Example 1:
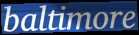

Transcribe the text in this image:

baltimore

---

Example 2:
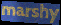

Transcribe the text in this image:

marshy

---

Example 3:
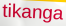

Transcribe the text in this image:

tikanga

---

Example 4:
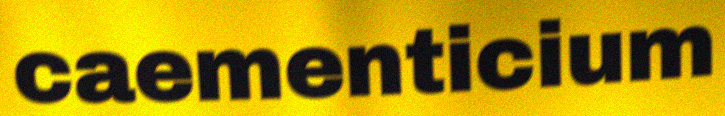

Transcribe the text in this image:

caementicium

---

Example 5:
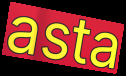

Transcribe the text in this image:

asta